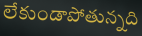
లేకుండాపోతున్నది